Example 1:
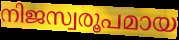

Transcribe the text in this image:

നിജസ്വരൂപമായ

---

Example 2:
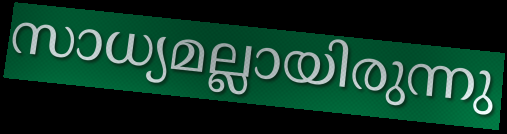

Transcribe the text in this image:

സാധ്യമല്ലായിരുന്നു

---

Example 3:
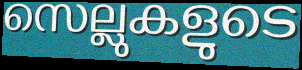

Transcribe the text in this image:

സെല്ലുകളുടെ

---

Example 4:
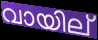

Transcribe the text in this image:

വായില്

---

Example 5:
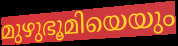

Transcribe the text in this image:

മുഴുഭൂമിയെയും